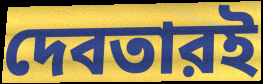
দেবতারই